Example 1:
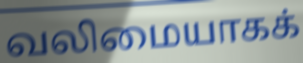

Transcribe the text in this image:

வலிமையாகக்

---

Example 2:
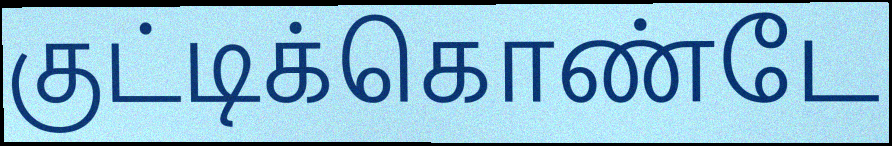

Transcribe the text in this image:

குட்டிக்கொண்டே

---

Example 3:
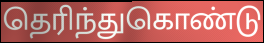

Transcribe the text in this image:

தெரிந்துகொண்டு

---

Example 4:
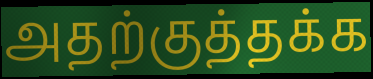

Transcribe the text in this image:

அதற்குத்தக்க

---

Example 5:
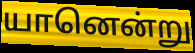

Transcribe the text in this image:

யானென்று